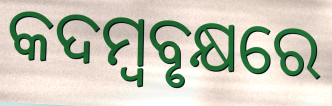
କଦମ୍ୱବୃକ୍ଷରେ